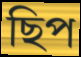
ছিপ